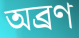
অব্রণ